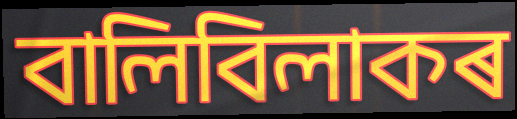
বালিবিলাকৰ